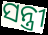
ସନ୍ତ୍ରୀ